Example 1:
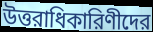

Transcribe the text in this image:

উত্তরাধিকারিণীদের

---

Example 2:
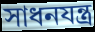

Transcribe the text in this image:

সাধনযন্ত্র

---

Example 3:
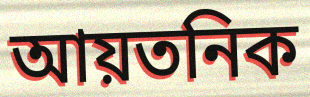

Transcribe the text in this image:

আয়তনিক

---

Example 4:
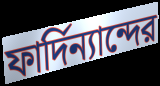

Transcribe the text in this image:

ফার্দিন্যান্দের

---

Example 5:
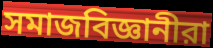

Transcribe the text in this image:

সমাজবিজ্ঞানীরা